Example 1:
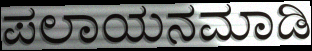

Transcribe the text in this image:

ಪಲಾಯನಮಾಡಿ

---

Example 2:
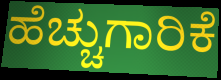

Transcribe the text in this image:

ಹೆಚ್ಚುಗಾರಿಕೆ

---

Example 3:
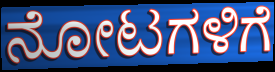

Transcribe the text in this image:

ನೋಟಗಳಿಗೆ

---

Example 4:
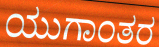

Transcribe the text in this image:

ಯುಗಾಂತರ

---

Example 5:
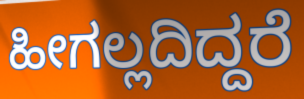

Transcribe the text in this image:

ಹೀಗಲ್ಲದಿದ್ದರೆ